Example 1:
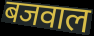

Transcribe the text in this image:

बजवाल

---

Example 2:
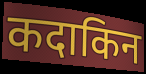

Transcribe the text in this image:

कदाकिन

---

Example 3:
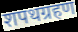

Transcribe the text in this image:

शपथग्रहण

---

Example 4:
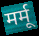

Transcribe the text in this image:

मर्मू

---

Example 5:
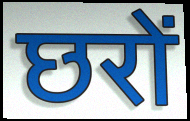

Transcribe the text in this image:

छरों